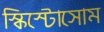
স্কিস্টোসোম